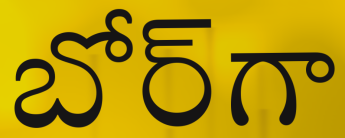
బోర్‌గా